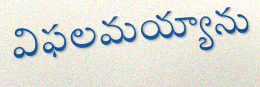
విఫలమయ్యాను